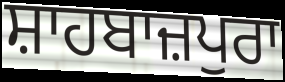
ਸ਼ਾਹਬਾਜ਼ਪੁਰਾ